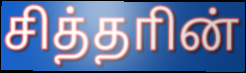
சித்தரின்